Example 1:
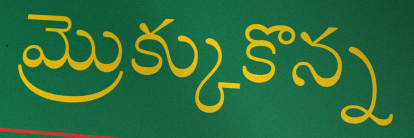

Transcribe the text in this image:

మ్రొక్కుకొన్న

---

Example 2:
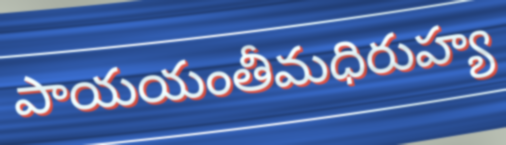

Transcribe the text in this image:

పాయయంతీమధిరుహ్య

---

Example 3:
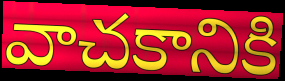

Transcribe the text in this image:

వాచకానికి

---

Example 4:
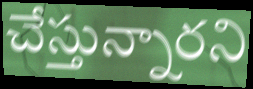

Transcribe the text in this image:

చేస్తున్నారని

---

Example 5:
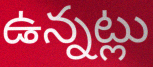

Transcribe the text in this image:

ఉన్నట్లు